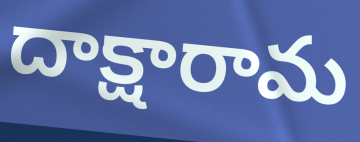
దాక్షారామ